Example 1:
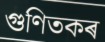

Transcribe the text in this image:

গুণিতকৰ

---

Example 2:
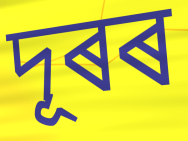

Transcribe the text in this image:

দূৰৰ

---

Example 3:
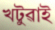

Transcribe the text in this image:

খটুৱাই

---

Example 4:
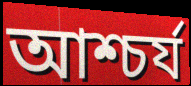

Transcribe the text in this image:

আশ্চৰ্য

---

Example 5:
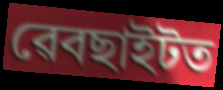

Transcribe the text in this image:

ৱেবছাইটত